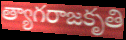
త్యాగరాజకృతి